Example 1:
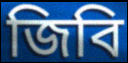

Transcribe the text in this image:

জিবি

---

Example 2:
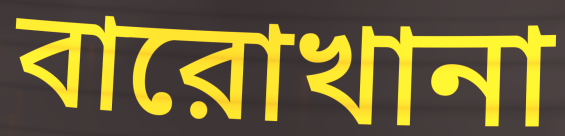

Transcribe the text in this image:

বারোখানা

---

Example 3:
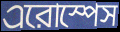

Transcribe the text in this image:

এরোস্পেস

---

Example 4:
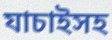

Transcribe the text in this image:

যাচাইসহ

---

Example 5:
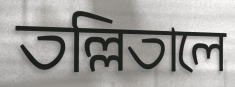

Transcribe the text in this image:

তল্লিতালে